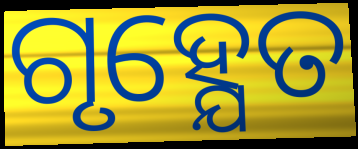
ଗୃହ୍ଯେତ